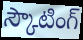
స్కౌటింగ్